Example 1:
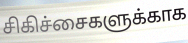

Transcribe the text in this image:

சிகிச்சைகளுக்காக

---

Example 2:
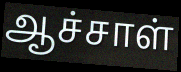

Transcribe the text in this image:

ஆச்சாள்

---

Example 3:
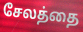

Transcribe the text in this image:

சேலத்தை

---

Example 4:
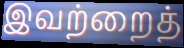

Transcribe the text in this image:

இவற்றைத்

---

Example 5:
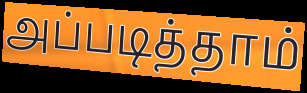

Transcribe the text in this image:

அப்படித்தாம்